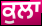
ਕੁਲਾ